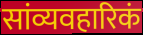
सांव्यवहारिकं